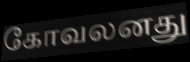
கோவலனது